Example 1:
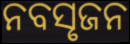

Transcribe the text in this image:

ନବସୃଜନ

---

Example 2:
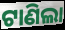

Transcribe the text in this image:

ଟାଣିଲା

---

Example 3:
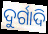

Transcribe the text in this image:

ଦୁର୍ଗାଦି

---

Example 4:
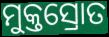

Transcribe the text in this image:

ମୁକ୍ତସ୍ରୋତ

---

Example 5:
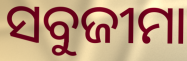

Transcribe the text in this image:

ସବୁଜୀମା